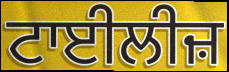
ਟਾਈਲੀਜ਼